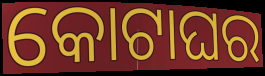
କୋଟାଘର